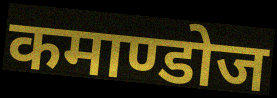
कमाण्डोज